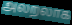
அலறலாக